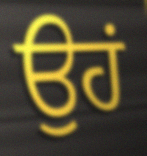
ਉਹਂ